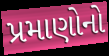
પ્રમાણોનો